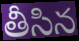
తీసిన